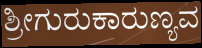
ಶ್ರೀಗುರುಕಾರುಣ್ಯವ